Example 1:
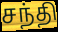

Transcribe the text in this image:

சந்தி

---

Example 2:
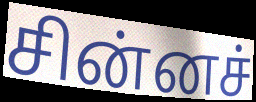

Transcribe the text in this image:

சின்னச்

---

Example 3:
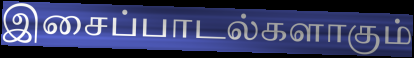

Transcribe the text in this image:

இசைப்பாடல்களாகும்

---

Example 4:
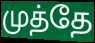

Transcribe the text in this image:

முத்தே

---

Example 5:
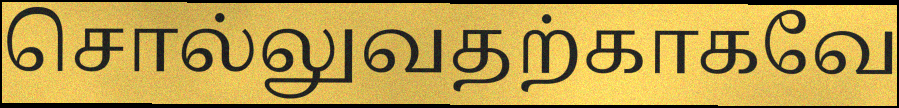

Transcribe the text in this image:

சொல்லுவதற்காகவே